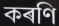
কৰণি